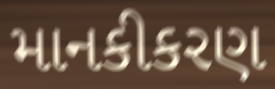
માનકીકરણ